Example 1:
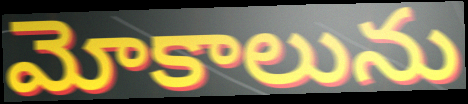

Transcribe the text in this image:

మోకాలును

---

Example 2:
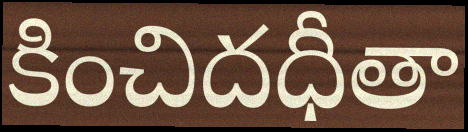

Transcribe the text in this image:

కించిదధీతా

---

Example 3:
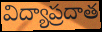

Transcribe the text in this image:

విద్యాప్రదాత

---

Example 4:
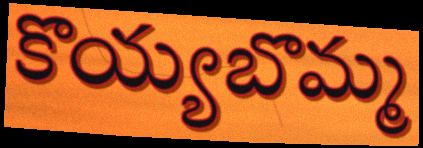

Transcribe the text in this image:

కొయ్యబొమ్మ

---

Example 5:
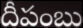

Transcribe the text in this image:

దీపంబు